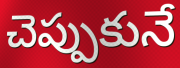
చెప్పుకునే